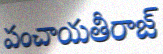
పంచాయతీరాజ్